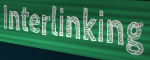
Interlinking